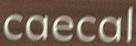
caecal